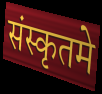
संस्कृतमे